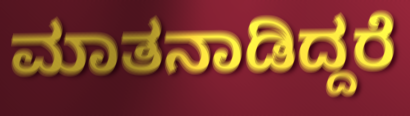
ಮಾತನಾಡಿದ್ದರೆ